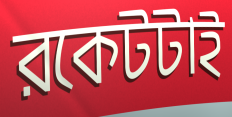
রকেটটাই